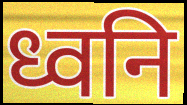
ध्वनि